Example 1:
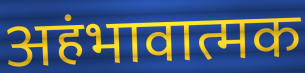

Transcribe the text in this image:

अहंभावात्मक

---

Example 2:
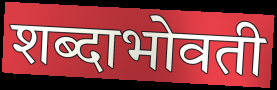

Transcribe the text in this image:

शब्दाभोवती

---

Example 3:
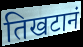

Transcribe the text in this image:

तिखटानं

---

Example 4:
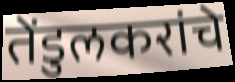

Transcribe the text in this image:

तेंडुलकरांचे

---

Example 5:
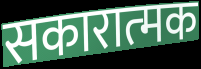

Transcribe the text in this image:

सकारात्‍मक